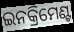
ଇନକ୍ରିମେଣ୍ଟ